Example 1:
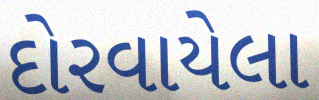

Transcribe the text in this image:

દોરવાયેલા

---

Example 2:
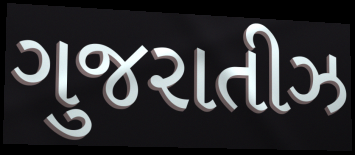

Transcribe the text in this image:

ગુજરાતીઝ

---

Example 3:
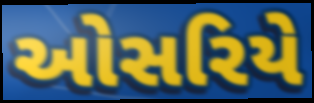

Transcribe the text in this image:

ઓસરિયે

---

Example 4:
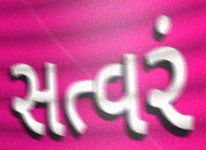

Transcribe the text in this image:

સત્વરં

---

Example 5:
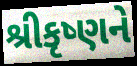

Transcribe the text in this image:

શ્રીકૃષ્ણને